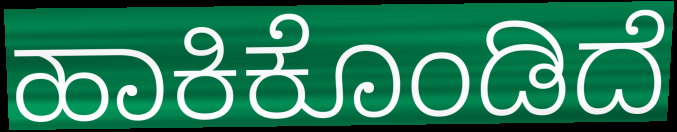
ಹಾಕಿಕೊಂಡಿದೆ